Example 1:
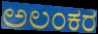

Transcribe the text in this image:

ಅಲಂಕರ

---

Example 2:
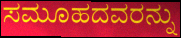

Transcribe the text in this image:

ಸಮೂಹದವರನ್ನು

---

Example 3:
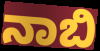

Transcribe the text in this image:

ನಾಬಿ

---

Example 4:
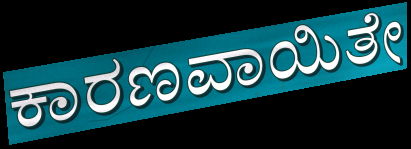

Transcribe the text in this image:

ಕಾರಣವಾಯಿತೇ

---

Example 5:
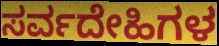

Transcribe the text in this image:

ಸರ್ವದೇಹಿಗಳ